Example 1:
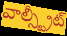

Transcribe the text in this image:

వాల్స్ట్రీట్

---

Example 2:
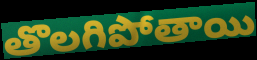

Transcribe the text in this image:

తొలగిపోతాయి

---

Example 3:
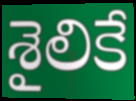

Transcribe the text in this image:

శైలికే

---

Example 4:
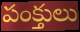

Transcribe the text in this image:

పంక్తులు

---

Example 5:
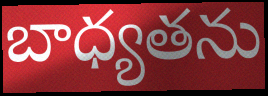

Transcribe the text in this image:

బాధ్యతను